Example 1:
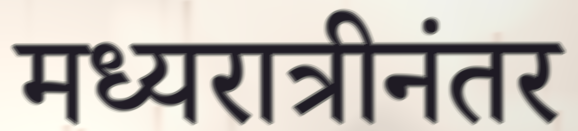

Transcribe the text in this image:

मध्यरात्रीनंतर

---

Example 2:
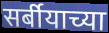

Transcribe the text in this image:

सर्बीयाच्या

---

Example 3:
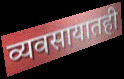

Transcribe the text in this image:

व्यवसायातही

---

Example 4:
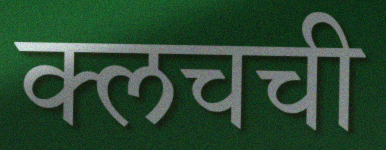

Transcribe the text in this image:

क्लचची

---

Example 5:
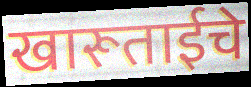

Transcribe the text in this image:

खारूताईचे